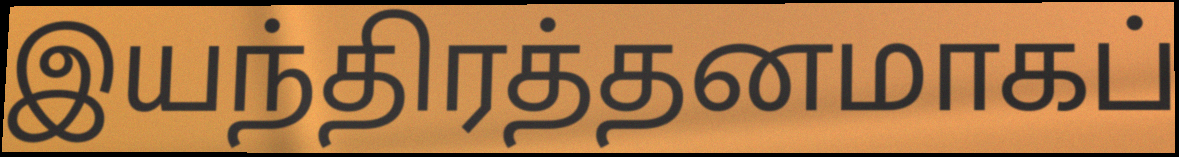
இயந்திரத்தனமாகப்